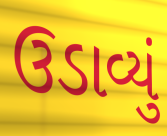
ઉડાવ્યું